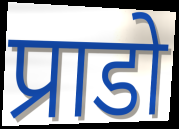
प्राडो